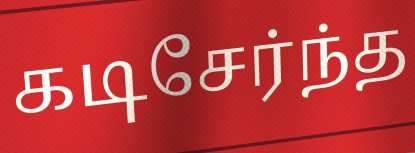
கடிசேர்ந்த